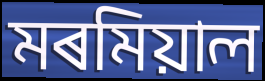
মৰমিয়াল